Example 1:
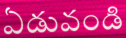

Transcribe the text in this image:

ఏడువండి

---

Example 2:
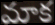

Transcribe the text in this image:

మాక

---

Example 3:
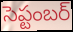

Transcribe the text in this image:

సెప్టంబర్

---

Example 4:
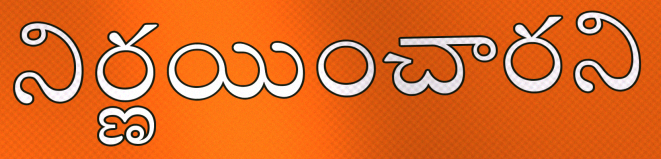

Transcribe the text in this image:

నిర్ణయించారని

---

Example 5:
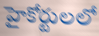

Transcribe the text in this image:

హైకోర్టులలో